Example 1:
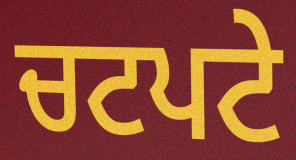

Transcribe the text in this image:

ਚਟਪਟੇ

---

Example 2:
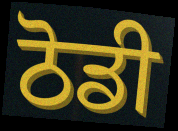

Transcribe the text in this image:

ਠੋਡੀ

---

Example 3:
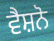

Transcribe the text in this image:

ਵੈਸ਼ਨੋ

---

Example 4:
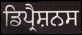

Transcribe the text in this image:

ਡਿਪ੍ਰੈਸ਼ਨਸ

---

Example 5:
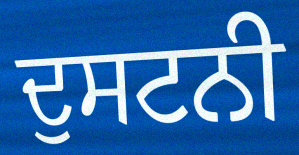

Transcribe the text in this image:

ਦੁਸਟਨੀ